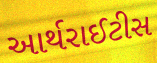
આર્થરાઈટીસ